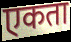
एकता